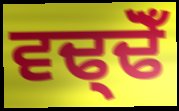
ਵਢ੍ਢੋਁ